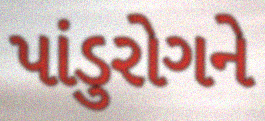
પાંડુરોગને